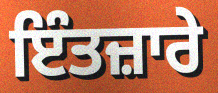
ਇੰਤਜ਼ਾਰੇ